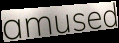
amused